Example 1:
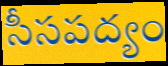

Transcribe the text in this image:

సీసపద్యం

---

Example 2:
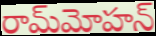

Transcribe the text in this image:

రామ్‌మోహన్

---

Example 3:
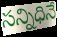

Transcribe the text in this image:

సన్నిధినే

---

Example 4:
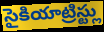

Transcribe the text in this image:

సైకియాట్రిస్ట్లు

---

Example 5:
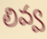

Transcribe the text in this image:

లివ్వ